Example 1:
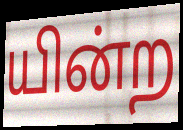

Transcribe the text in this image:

யின்ற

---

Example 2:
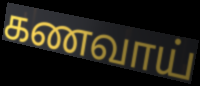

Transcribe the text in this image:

கணவாய்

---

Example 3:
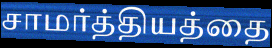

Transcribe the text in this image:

சாமர்த்தியத்தை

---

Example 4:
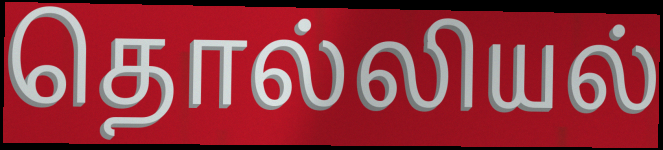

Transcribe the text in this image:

தொல்லியல்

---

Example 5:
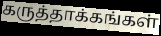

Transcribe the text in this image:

கருத்தாக்கங்கள்